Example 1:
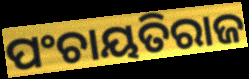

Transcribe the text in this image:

ପଂଚାୟତିରାଜ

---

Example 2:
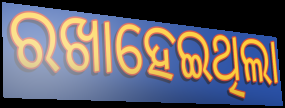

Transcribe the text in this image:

ରଖାହେଇଥିଲା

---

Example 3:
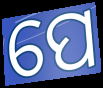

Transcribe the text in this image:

ପେ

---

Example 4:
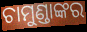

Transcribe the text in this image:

ଚାମୁଣ୍ଡାଙ୍କର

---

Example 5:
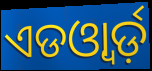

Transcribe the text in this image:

ଏଡଓ୍ବାର୍ଡ଼